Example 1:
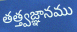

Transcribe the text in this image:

తత్త్వజ్ఞానము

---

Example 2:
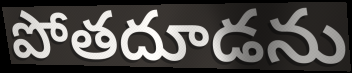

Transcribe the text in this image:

పోతదూడను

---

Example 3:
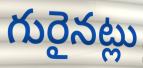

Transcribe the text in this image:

గురైనట్లు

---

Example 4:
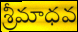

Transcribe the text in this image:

శ్రీమాధవ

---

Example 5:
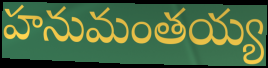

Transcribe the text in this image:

హనుమంతయ్య